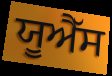
ਯੂਐੱਸ